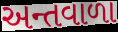
અન્તવાળા